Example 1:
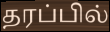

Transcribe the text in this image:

தரப்பில்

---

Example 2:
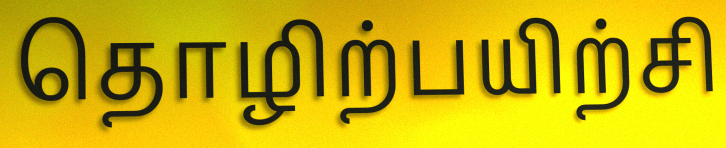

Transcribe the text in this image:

தொழிற்பயிற்சி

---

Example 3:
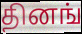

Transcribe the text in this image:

தினங்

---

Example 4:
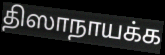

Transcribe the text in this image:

திஸாநாயக்க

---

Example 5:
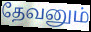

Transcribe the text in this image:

தேவனும்